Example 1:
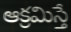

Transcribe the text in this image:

ఆక్రమిస్తే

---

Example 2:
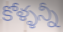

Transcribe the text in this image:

కోళ్ళన్నీ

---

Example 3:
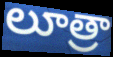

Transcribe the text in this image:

లూత్రా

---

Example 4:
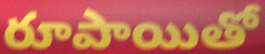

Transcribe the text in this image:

రూపాయితో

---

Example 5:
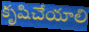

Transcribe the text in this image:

కృషిచేయాలి